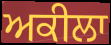
ਅਕੀਲਾ